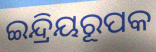
ଇନ୍ଦ୍ରିୟରୂପକ